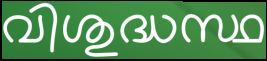
വിശുദ്ധസ്ഥ